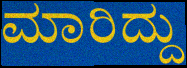
ಮಾರಿದ್ದು